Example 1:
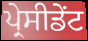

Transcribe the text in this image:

ਪ੍ਰੇਸੀਡੇਂਟ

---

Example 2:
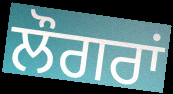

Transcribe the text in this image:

ਲੌਗਰਾਂ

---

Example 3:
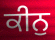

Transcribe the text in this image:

ਕੀਨੁ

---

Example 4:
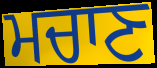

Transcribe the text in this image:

ਮਚਾਣ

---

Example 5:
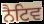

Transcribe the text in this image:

ਨੈਟਿਵ